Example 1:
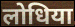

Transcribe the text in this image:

लोधिया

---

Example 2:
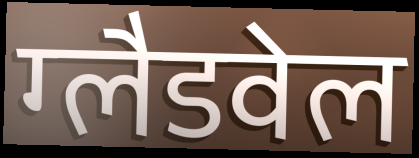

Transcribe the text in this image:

ग्लैडवेल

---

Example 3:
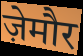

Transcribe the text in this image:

ज़ेमौर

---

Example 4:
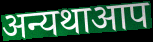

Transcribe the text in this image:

अन्यथाआप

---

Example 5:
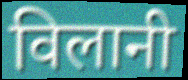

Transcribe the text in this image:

विलानी